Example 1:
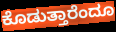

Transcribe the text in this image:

ಕೊಡುತ್ತಾರೆಂದೂ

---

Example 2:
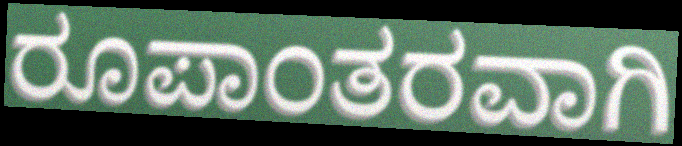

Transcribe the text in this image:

ರೂಪಾಂತರವಾಗಿ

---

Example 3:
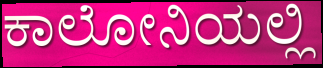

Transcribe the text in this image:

ಕಾಲೋನಿಯಲ್ಲಿ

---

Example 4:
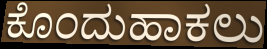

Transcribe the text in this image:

ಕೊಂದುಹಾಕಲು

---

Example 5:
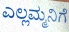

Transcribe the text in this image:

ಎಲ್ಲಮ್ಮನಿಗೆ